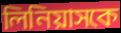
লিনিয়াসকে